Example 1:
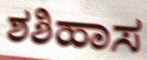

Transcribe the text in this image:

ಶಶಿಹಾಸ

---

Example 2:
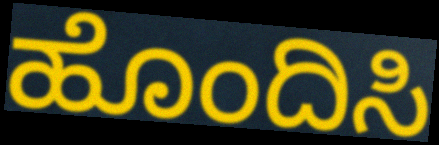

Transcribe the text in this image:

ಹೊಂದಿಸಿ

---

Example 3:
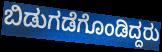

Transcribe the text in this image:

ಬಿಡುಗಡೆಗೊಂಡಿದ್ದರು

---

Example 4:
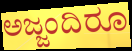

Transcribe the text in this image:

ಅಜ್ಜಂದಿರೂ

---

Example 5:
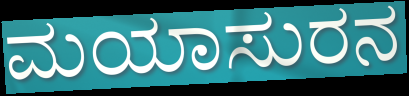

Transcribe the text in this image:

ಮಯಾಸುರನ